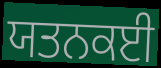
ਯਤਨਕਈ